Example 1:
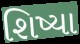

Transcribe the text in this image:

શિષ્યા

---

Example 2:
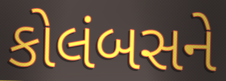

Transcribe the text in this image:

કોલંબસને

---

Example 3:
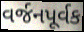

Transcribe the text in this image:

વર્જનપૂર્વક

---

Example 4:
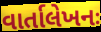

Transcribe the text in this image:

વાર્તાલેખનઃ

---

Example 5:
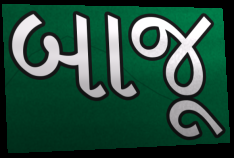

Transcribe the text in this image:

બાજૂ